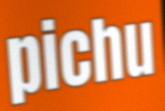
pichu